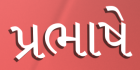
પ્રભાષે